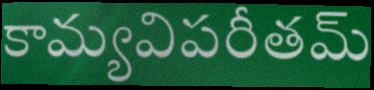
కామ్యవిపరీతమ్